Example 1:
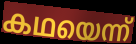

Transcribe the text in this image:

കഥയെന്ന്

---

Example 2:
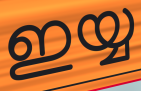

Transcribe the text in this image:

ഇയ്യ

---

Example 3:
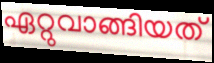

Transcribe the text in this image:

ഏറ്റുവാങ്ങിയത്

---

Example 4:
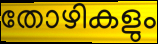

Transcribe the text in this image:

തോഴികളും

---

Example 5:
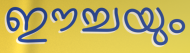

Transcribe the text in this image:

ഈച്ചയും